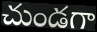
చుండగా